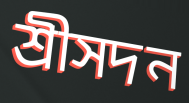
শ্রীসদন